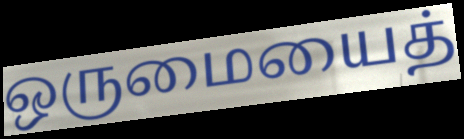
ஒருமையைத்